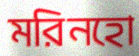
মরিনহো